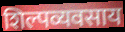
शिल्पव्यवसाय